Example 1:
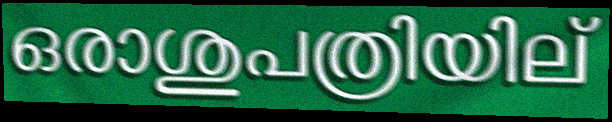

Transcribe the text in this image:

ഒരാശുപത്രിയില്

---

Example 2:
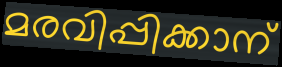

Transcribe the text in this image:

മരവിപ്പിക്കാന്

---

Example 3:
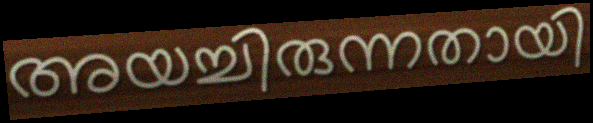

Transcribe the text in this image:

അയച്ചിരുന്നതായി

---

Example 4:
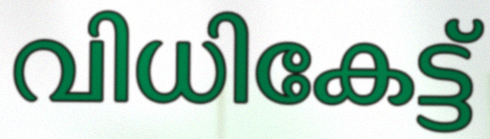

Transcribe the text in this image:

വിധികേട്ട്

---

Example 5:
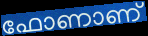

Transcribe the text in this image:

ഫോണാണ്